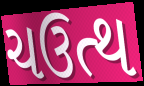
ચઉત્થ